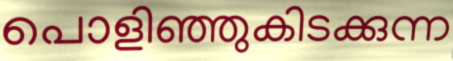
പൊളിഞ്ഞുകിടക്കുന്ന